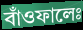
বাঁওফালেঃ